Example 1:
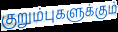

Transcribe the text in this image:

குறும்புகளுக்கும்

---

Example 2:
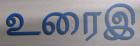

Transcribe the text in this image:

உரைஇ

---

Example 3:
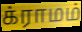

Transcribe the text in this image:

க்ராமம்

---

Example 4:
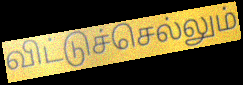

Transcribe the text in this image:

விட்டுச்செல்லும்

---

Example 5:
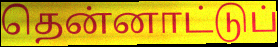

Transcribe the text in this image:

தென்னாட்டுப்